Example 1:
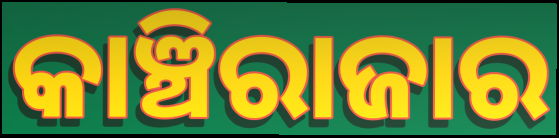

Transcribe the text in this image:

କାଞ୍ଚିରାଜାର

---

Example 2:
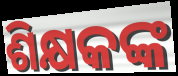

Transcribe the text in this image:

ଶିକ୍ଷକଙ୍କ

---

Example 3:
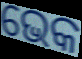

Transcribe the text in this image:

ଭେକ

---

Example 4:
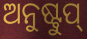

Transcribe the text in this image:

ଅନୁଷ୍ଟୁପ୍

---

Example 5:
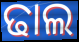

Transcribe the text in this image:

ଢାଲ